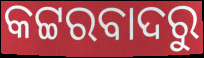
କଟ୍ଟରବାଦରୁ